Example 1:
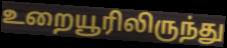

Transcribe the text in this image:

உறையூரிலிருந்து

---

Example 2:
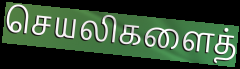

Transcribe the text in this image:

செயலிகளைத்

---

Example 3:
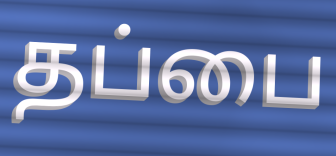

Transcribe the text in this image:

தப்பை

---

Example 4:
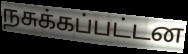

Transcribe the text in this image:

நசுக்கப்பட்டன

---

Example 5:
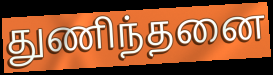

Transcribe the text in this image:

துணிந்தனை